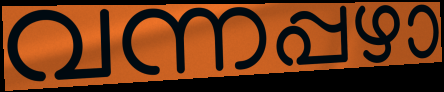
വന്നപ്പഴാ